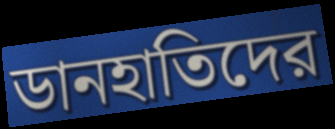
ডানহাতিদের